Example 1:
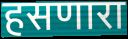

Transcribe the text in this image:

हसणारा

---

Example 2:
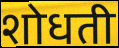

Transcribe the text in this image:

शोधती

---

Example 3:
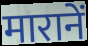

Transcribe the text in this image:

मारानें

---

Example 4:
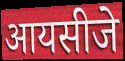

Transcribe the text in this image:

आयसीजे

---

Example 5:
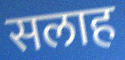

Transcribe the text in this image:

सलाह